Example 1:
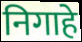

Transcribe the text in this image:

निगाहे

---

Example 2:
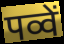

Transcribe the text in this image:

पव्वें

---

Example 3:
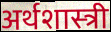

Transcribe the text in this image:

अर्थशास्त्री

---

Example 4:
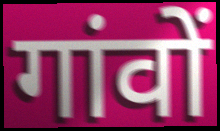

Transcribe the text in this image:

गांवों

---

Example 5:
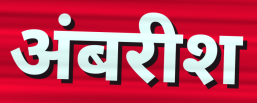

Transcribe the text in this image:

अंबरीश